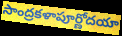
సాంద్రకళాపూర్ణోదయా